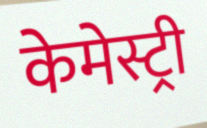
केमेस्ट्री